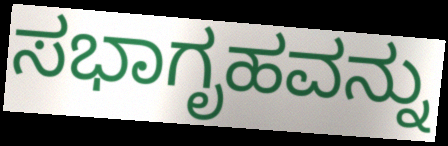
ಸಭಾಗೃಹವನ್ನು